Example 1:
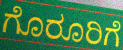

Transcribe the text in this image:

ಗೊರೂರಿಗೆ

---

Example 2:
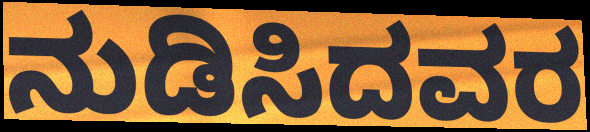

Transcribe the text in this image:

ನುಡಿಸಿದವರ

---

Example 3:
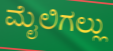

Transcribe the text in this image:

ಮೈಲಿಗಲ್ಲು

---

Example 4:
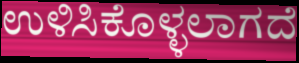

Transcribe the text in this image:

ಉಳಿಸಿಕೊಳ್ಳಲಾಗದೆ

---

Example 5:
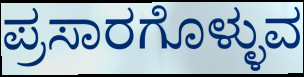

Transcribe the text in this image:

ಪ್ರಸಾರಗೊಳ್ಳುವ